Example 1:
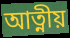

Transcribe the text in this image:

আত্নীয়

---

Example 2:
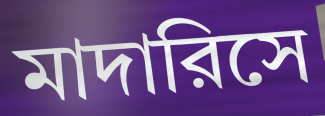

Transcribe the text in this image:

মাদারিসে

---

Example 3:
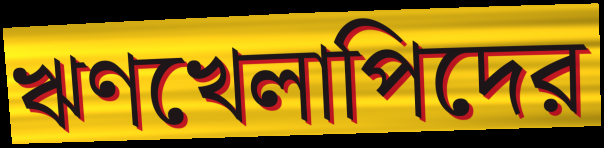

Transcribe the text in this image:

ঋণখেলাপিদের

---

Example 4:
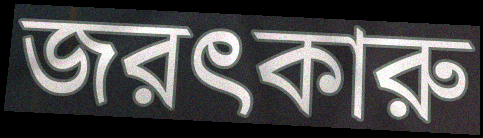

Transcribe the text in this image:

জরৎকারু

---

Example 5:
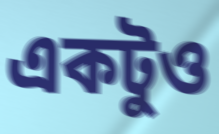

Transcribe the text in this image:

একটুও